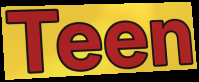
Teen